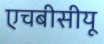
एचबीसीयू